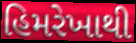
હિમરેખાથી